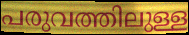
പരുവത്തിലുള്ള